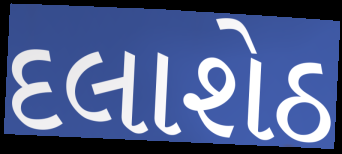
દલાશેઠ